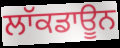
ਲਾੱਕਡਾਊਨ